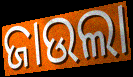
ଜାଉଲା